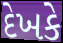
દેખકે